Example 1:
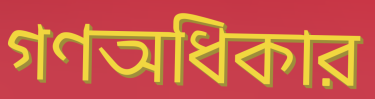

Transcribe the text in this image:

গণঅধিকার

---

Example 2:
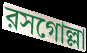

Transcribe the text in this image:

রসগোল্লা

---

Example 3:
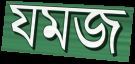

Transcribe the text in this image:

যমজ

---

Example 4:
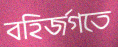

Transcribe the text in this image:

বহির্জগতে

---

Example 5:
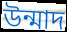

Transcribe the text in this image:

উন্মাদ